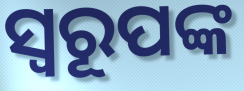
ସ୍ୱରୂପଙ୍କ